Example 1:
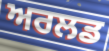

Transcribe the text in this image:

ਅਰਲਡ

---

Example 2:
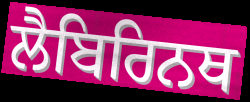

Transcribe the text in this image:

ਲੈਬਿਰਿਨਥ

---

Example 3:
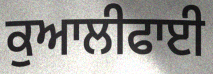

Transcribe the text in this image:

ਕੁਆਲੀਫਾਈ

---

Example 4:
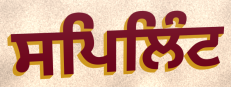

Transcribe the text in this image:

ਸਪਿਲਿੰਟ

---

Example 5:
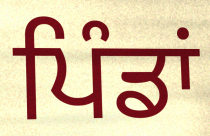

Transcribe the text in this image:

ਪਿੰਡਾਂ